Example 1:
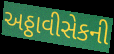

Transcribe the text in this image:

અઠ્ઠાવીસેકની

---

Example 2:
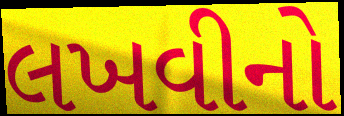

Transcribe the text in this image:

લખવીનો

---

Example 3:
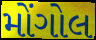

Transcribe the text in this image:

મોંગોલ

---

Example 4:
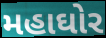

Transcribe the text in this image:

મહાઘોર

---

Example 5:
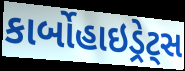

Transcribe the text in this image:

કાર્બોહાઇડ્રેટ્સ